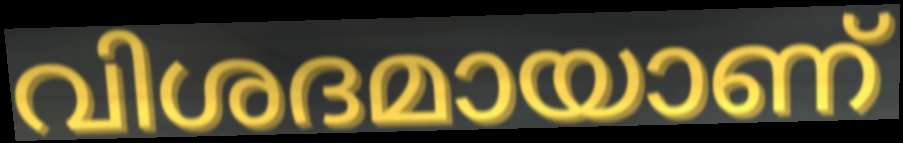
വിശദമായാണ്